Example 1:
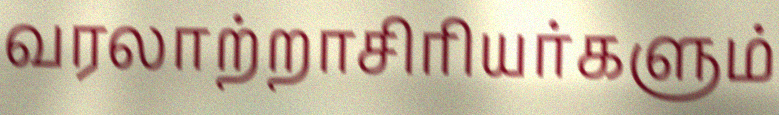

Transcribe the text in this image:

வரலாற்றாசிரியர்களும்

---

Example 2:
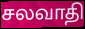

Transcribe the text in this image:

சலவாதி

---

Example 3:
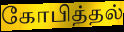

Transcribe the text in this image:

கோபித்தல்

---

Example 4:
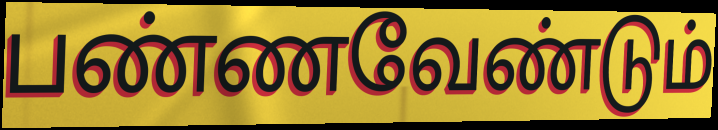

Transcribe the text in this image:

பண்ணவேண்டும்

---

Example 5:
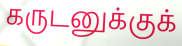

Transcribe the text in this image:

கருடனுக்குக்